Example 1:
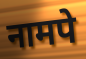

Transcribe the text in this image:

नामपे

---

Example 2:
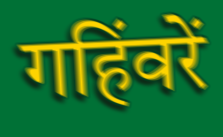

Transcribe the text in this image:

गहिंवरें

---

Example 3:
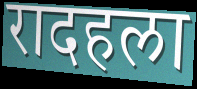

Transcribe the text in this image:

रादहला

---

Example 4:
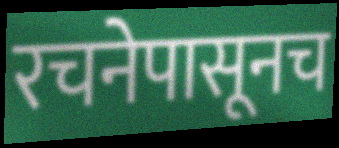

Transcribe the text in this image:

रचनेपासूनच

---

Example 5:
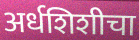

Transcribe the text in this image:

अर्धशिशीचा